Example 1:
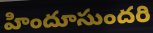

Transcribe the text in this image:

హిందూసుందరి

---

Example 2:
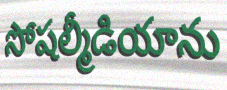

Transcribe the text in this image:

సోషల్మీడియాను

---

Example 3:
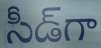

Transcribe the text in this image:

సీడ్‌గా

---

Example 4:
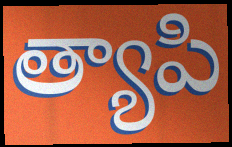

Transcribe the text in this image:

త్యాపి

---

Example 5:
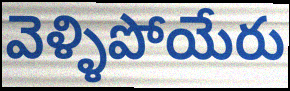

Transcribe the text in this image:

వెళ్ళిపోయేరు